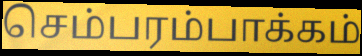
செம்பரம்பாக்கம்